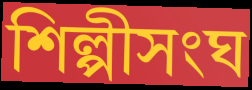
শিল্পীসংঘ